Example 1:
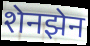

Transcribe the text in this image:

शेनझेन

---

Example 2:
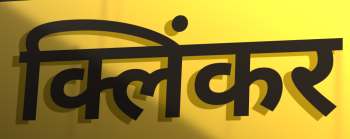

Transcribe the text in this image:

क्लिंकर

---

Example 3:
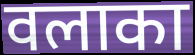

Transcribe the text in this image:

वलाका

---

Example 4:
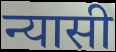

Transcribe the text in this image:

न्यासी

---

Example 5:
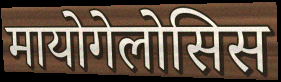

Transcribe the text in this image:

मायोगेलोसिस